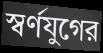
স্বর্ণযুগের